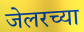
जेलरच्या